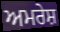
ਅਮਰੇਸ਼